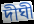
দীঘী